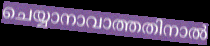
ചെയ്യാനാവാത്തതിനാൽ